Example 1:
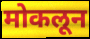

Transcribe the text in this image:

मोकलून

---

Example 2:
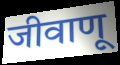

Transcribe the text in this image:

जीवाणू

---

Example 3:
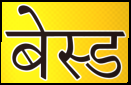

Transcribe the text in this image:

बेस्ड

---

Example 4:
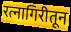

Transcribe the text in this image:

रत्नागिरीतून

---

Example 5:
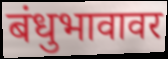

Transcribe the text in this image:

बंधुभावावर